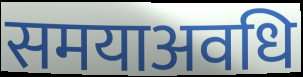
समयाअवधि